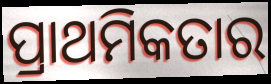
ପ୍ରାଥମିକତାର